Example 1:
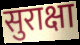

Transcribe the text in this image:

सुराक्षा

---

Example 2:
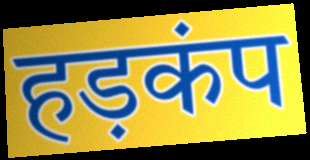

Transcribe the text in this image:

हड़कंप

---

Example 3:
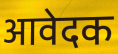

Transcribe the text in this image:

आवेदक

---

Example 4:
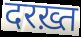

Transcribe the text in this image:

दरख़्त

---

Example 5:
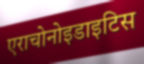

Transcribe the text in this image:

एराचोनोइडाइटिस